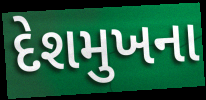
દેશમુખના